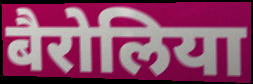
बैरोलिया